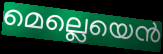
മെല്ലെയെൻ